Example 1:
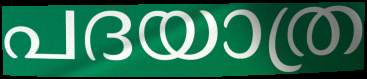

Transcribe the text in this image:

പദയാത്ര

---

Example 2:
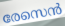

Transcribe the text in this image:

രേസെൻ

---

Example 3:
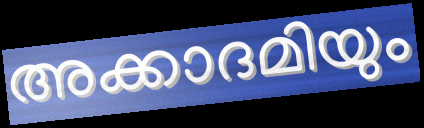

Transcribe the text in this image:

അക്കാദമിയും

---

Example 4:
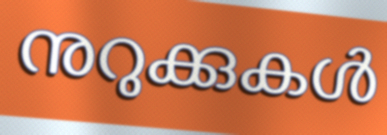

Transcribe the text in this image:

നുറുക്കുകൾ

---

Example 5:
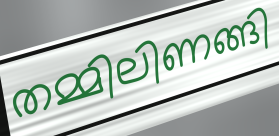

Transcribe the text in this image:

തമ്മിലിണങ്ങി